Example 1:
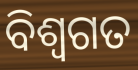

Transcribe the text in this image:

ବିଶ୍ଵଗତ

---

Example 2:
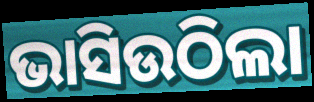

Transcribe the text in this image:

ଭାସିଉଠିଲା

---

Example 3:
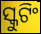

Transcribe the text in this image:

ସ୍କୁଟିଂ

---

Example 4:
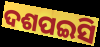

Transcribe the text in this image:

ଦଶପଇସି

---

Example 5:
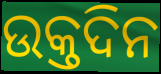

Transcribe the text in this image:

ଉକ୍ତଦିନ